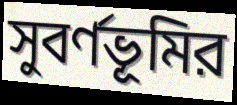
সুবর্ণভূমির